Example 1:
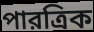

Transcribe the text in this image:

পারত্রিক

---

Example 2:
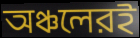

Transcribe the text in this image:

অঞ্চলেরই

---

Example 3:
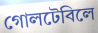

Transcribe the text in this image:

গোলটেবিলে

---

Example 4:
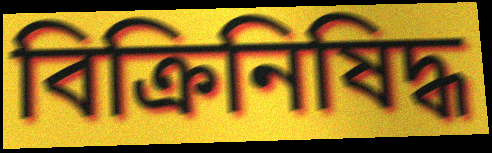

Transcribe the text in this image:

বিক্রিনিষিদ্ধ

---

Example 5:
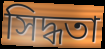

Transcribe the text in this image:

সিদ্ধতা